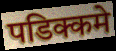
पडिक्कमे